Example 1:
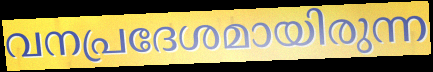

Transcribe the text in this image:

വനപ്രദേശമായിരുന്ന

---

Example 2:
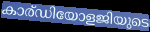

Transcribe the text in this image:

കാര്ഡിയോളജിയുടെ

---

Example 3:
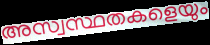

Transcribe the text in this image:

അസ്വസ്ഥതകളെയും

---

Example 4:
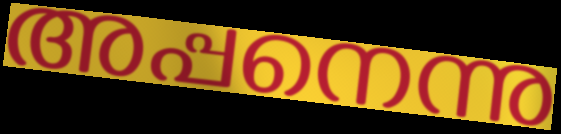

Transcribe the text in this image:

അപ്പനെന്നു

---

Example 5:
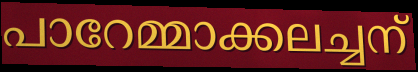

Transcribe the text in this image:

പാറേമ്മാക്കലച്ചന്